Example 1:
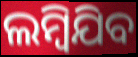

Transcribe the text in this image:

ଲମ୍ୱିଯିବ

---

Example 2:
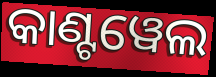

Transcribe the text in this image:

କାଣ୍ଟୱେଲ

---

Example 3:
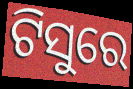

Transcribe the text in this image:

ଟିସୁରେ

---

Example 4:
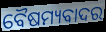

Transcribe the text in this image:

ବୈଷମ୍ୟବାଦର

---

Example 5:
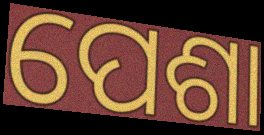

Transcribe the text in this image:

ପେଶା